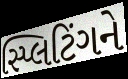
સ્પ્લિટિંગને